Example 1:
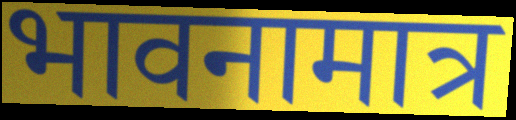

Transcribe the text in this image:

भावनामात्र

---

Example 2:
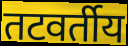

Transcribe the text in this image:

तटवर्तीय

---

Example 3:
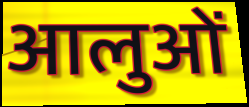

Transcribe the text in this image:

आलुओं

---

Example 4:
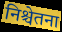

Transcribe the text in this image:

निश्चेतना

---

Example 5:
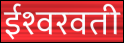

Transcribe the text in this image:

ईश्वरवती